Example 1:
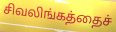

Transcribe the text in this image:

சிவலிங்கத்தைச்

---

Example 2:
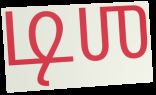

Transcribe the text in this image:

டிஶ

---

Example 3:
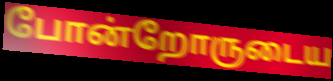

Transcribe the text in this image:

போன்றோருடைய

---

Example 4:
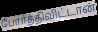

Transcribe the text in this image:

போர்த்திவிட்டான்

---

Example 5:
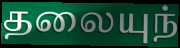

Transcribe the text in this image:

தலையுந்